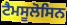
ਟੈਮਸੂਲੋਸਿਨ